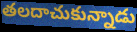
తలదాచుకున్నాడు